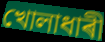
খোলাধাৰী